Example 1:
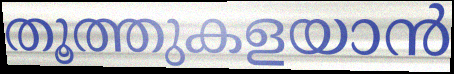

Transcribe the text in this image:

തൂത്തുകളയാൻ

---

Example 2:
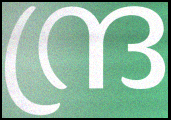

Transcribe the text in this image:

ന്ദ്ര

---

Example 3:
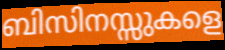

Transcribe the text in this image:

ബിസിനസ്സുകളെ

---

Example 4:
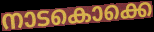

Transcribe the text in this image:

നാടകൊക്കെ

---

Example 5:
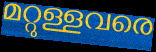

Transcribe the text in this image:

മറ്റുള്ളവരെ